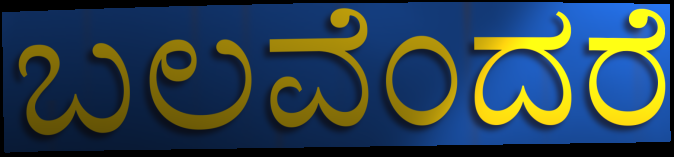
ಬಲವೆಂದರೆ